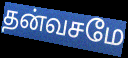
தன்வசமே